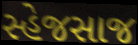
સ્હેજસાજ